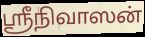
ஸ்ரீநிவாஸன்